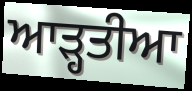
ਆੜ੍ਹਤੀਆ